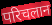
परिचलान